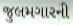
જુલમગારની